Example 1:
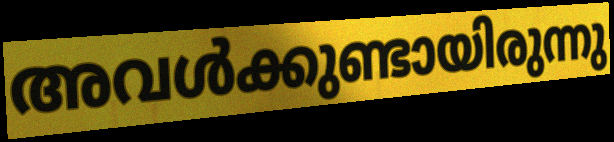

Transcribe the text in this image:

അവൾക്കുണ്ടായിരുന്നു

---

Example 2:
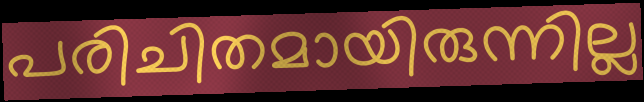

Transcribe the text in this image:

പരിചിതമായിരുന്നില്ല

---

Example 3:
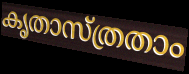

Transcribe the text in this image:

കൃതാസ്ത്രതാം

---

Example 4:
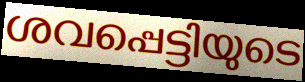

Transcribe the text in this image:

ശവപ്പെട്ടിയുടെ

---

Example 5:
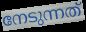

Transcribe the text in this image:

നേടുന്നത്